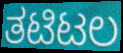
ತಟಿಟಲ